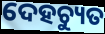
ଦେହଚ୍ୟୁତ